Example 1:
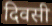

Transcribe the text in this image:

दिवसी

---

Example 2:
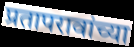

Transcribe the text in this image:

प्रतापरावांच्या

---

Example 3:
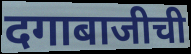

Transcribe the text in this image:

दगाबाजीची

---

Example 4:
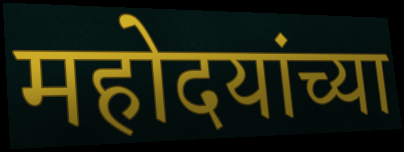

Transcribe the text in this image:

महोदयांच्या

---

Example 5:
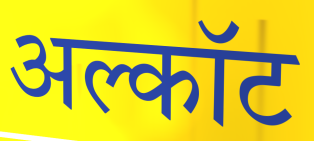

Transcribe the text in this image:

अल्कॉट